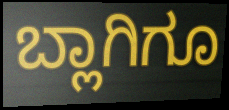
ಬ್ಲಾಗಿಗೂ